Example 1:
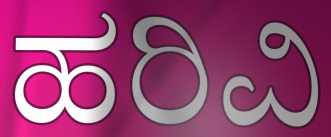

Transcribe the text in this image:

ಹರಿವಿ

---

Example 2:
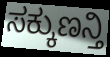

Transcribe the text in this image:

ಸಕ್ಕುಣನ್ತಿ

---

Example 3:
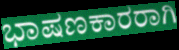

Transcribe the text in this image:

ಭಾಷಣಕಾರರಾಗಿ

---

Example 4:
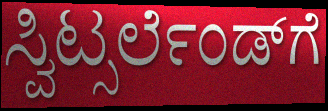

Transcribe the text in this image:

ಸ್ವಿಟ್ಸರ್ಲೆಂಡ್‌ಗೆ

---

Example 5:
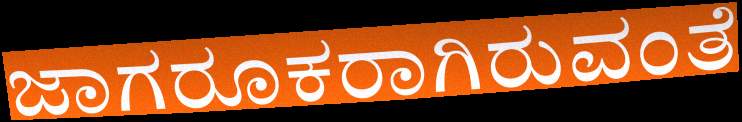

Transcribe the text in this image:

ಜಾಗರೂಕರಾಗಿರುವಂತೆ